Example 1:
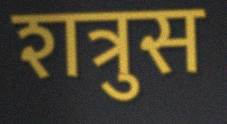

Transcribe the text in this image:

शत्रुस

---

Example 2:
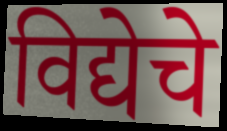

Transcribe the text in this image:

विद्येचे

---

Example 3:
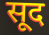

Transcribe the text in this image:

सूद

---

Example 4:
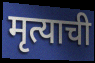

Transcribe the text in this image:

मृत्याची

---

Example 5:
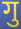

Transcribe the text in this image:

गु